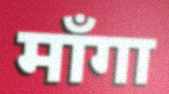
माँगा